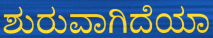
ಶುರುವಾಗಿದೆಯಾ